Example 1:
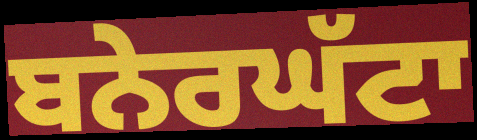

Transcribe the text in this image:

ਬਨੇਰਘੱਟਾ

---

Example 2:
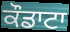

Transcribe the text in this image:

ਕੌਡਾਟਾ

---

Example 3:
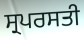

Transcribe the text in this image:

ਸ੍ਰਪਰਸਤੀ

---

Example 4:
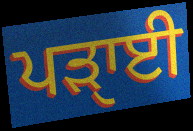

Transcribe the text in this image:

ਪੜਾੑਈ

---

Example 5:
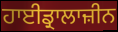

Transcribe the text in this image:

ਹਾਈਡ੍ਰਾਲਾਜ਼ੀਨ